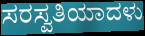
ಸರಸ್ವತಿಯಾದಳು